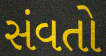
સંવતો